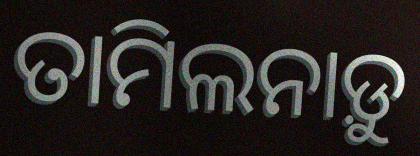
ତାମିଲନାଡ଼ୁ